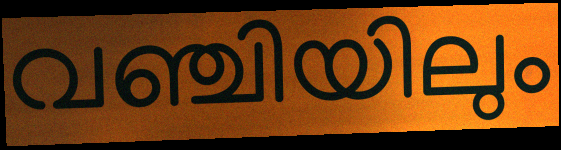
വഞ്ചിയിലും